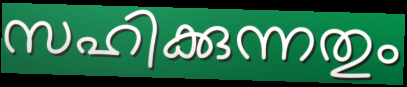
സഹിക്കുന്നതും